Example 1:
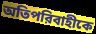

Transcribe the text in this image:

অতিপরিবাহীকে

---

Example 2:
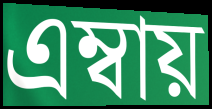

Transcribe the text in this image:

এম্বায়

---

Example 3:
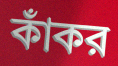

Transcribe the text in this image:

কাঁকর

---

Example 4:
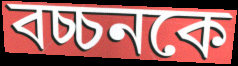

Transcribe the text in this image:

বচ্চনকে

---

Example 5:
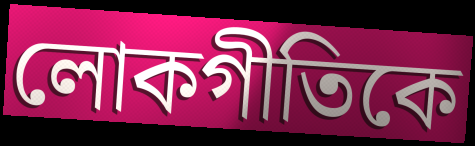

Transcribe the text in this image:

লোকগীতিকে